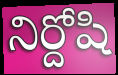
నిర్దోషి